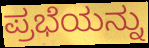
ಪ್ರಭೆಯನ್ನು